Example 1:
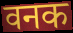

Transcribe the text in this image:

वनक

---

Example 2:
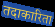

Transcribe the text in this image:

तदाकारिता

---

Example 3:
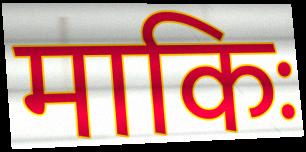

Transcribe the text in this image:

माकिः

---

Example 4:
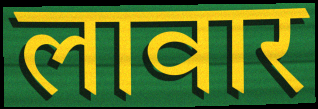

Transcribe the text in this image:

लावार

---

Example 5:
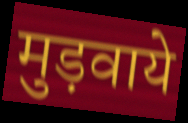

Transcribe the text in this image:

मुड़वाये